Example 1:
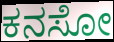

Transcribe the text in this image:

ಕನಸೋ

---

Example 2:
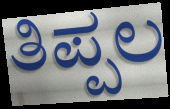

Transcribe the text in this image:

ತಿಪ್ಪಲ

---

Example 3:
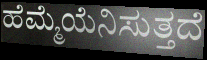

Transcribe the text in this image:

ಹೆಮ್ಮೆಯೆನಿಸುತ್ತದೆ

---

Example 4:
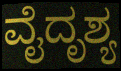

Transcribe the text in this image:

ವೈದೃಶ್ಯ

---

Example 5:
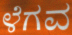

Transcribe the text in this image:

ಳೆಗವ